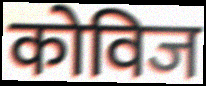
कोविज